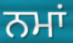
ਨਮਾਂ